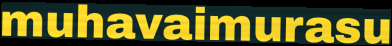
muhavaimurasu